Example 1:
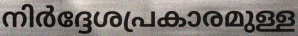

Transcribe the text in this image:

നിർദ്ദേശപ്രകാരമുള്ള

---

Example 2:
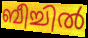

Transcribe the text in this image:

ബീച്ചിൽ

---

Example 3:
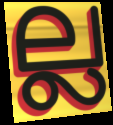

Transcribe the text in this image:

ല്ല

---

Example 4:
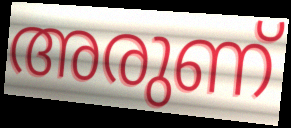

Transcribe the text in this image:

അരുണ്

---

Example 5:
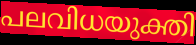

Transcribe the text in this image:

പലവിധയുക്തി